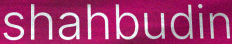
shahbudin